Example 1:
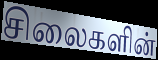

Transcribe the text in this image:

சிலைகளின்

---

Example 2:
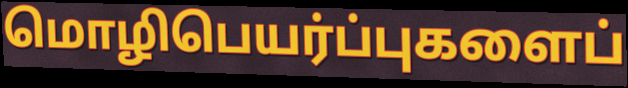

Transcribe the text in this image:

மொழிபெயர்ப்புகளைப்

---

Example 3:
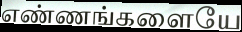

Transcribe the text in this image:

எண்ணங்களையே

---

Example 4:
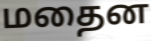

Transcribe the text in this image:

மதைன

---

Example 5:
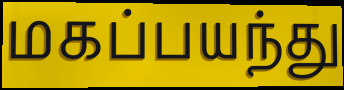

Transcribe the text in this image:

மகப்பயந்து